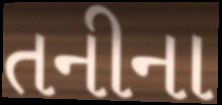
તનીના